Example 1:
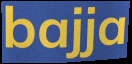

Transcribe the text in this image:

bajja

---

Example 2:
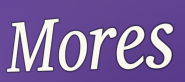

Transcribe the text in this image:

Mores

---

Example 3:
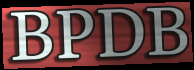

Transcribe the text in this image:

BPDB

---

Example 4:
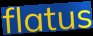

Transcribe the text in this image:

flatus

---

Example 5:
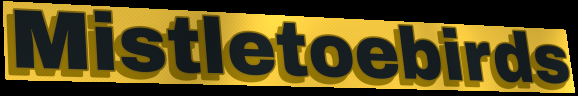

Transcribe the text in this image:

Mistletoebirds